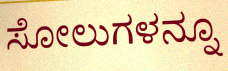
ಸೋಲುಗಳನ್ನೂ